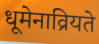
धूमेनाव्रियते